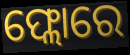
ଫ୍ଲୋରେ